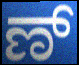
ಣ್